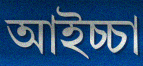
আইচ্চা